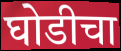
घोडीचा